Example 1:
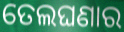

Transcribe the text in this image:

ତେଲଘଣାର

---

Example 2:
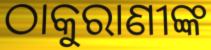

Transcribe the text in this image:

ଠାକୁରାଣୀଙ୍କ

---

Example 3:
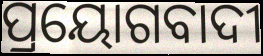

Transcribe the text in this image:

ପ୍ରୟୋଗବାଦୀ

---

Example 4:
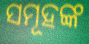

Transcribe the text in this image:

ସମୂହଙ୍କ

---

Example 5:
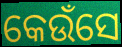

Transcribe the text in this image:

କେଉଁସେ